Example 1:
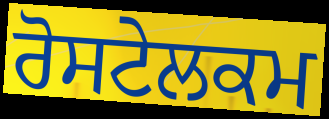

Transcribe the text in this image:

ਰੋਸਟੇਲਕਮ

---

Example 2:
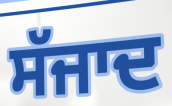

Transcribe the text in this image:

ਸੱਜਾਦ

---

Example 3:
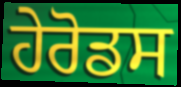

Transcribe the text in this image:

ਹੇਰੋਡਸ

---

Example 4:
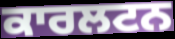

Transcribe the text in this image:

ਕਾਰਲਟਨ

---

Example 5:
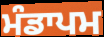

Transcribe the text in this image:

ਮੰਡਾਪਮ